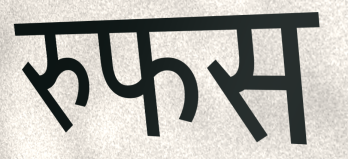
रुफस